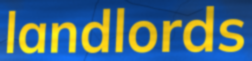
landlords